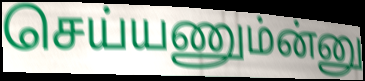
செய்யணும்ன்னு